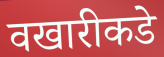
वखारीकडे